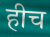
हीच